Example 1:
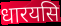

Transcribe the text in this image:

धारयसि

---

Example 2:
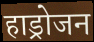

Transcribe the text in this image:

हाड्रोजन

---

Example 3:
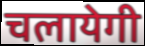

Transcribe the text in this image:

चलायेगी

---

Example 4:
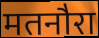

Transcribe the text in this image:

मतनौरा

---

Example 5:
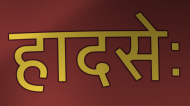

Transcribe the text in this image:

हादसेः